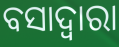
ବସାଦ୍ୱାରା